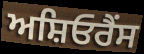
ਅਸ਼ਿਓਰੈਂਸ